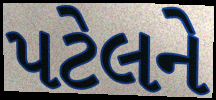
પટેલને